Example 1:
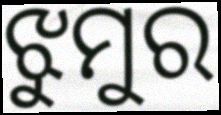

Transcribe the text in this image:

ଝୁମୁର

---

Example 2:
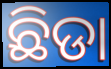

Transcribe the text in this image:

ଛିଡା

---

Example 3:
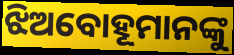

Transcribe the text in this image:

ଝିଅବୋହୂମାନଙ୍କୁ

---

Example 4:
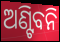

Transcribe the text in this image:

ଅଣ୍ଟିବନି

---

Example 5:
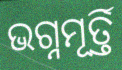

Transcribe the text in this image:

ଭଗ୍ନମୂର୍ତ୍ତି